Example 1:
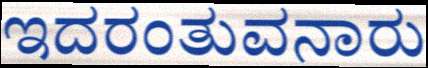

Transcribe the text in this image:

ಇದರಂತುವನಾರು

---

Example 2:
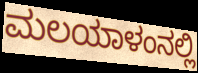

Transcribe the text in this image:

ಮಲಯಾಳಂನಲ್ಲಿ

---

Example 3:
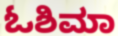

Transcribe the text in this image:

ಓಶಿಮಾ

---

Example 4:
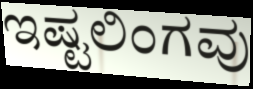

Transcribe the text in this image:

ಇಷ್ಟಲಿಂಗವು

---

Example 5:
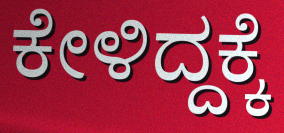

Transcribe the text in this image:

ಕೇಳಿದ್ದಕ್ಕೆ